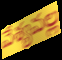
వేశ్యవల్ల